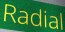
Radial